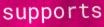
supports